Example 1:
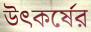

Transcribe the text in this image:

উৎকর্ষের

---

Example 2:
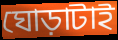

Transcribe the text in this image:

ঘোড়াটাই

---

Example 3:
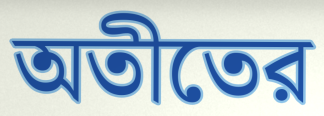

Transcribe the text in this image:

অতীতের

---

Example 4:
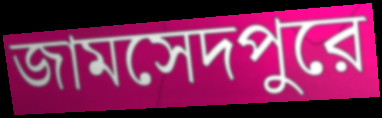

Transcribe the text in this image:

জামসেদপুরে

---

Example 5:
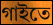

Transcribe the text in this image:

গাইতে